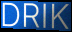
DRIK